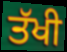
ਤੱਖੀ